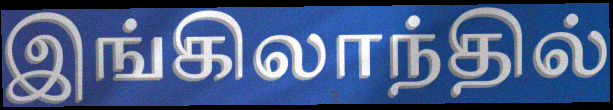
இங்கிலாந்தில்